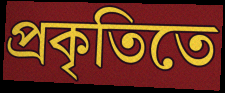
প্রকৃতিতে